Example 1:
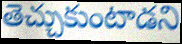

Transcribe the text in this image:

తెచ్చుకుంటాడని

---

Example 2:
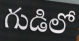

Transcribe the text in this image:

గుడిలో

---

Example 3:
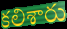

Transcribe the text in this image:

కలిశారు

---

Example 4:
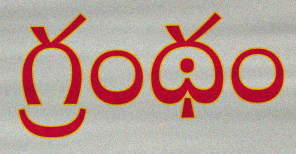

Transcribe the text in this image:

గ్రంథం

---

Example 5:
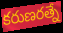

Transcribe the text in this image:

కరుణరత్నే